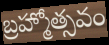
బ్రహ్మోత్సవం